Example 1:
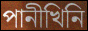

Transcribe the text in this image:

পানীখিনি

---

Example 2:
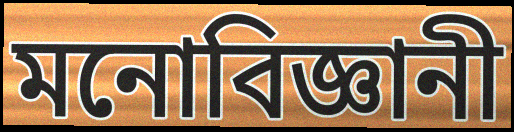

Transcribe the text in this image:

মনোবিজ্ঞানী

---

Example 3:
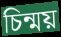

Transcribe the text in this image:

চিন্ময়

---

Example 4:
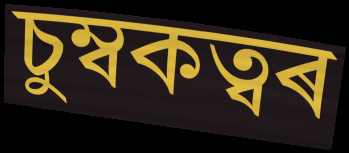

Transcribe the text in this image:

চুম্বকত্বৰ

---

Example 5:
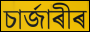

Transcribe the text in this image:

চাৰ্জাৰীৰ